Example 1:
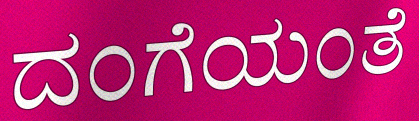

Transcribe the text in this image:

ದಂಗೆಯಂತೆ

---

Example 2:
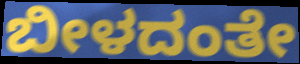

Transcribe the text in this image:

ಬೀಳದಂತೇ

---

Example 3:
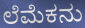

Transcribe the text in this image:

ಲೆಮೆಕನು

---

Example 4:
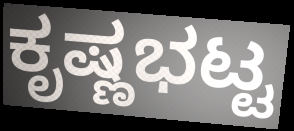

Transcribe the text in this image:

ಕೃಷ್ಣಭಟ್ಟ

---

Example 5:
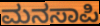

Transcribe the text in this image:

ಮನಸಾಪಿ